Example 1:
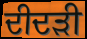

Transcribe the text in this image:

ਦੀਦੜੀ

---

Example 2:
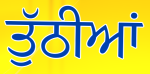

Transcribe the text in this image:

ਤੁੱਠੀਆਂ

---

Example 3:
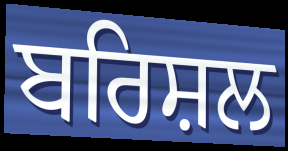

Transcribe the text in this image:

ਬਰਿਸ਼ਲ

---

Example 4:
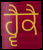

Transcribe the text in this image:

ਹ੍ਵੈਕੈ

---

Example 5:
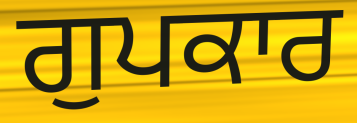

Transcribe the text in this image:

ਗੁਪਕਾਰ